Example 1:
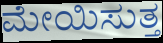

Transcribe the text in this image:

ಮೇಯಿಸುತ್ತ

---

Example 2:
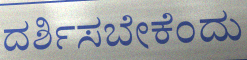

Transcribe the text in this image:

ದರ್ಶಿಸಬೇಕೆಂದು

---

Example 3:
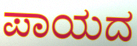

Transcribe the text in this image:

ಪಾಯದ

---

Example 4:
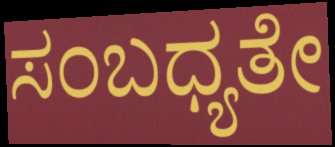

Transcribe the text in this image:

ಸಂಬಧ್ಯತೇ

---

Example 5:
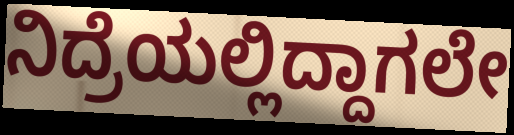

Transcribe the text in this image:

ನಿದ್ರೆಯಲ್ಲಿದ್ದಾಗಲೇ